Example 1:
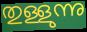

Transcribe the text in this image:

തുള്ളുന്നു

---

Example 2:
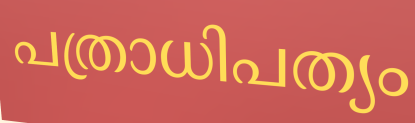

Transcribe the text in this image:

പത്രാധിപത്യം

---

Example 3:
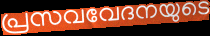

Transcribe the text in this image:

പ്രസവവേദനയുടെ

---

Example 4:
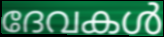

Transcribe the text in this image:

ദേവകൾ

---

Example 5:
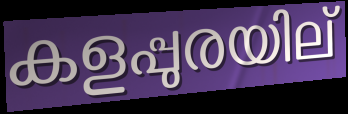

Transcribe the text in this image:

കളപ്പുരയില്